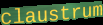
claustrum